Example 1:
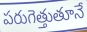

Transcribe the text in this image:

పరుగెత్తుతూనే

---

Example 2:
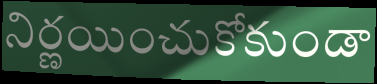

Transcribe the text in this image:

నిర్ణయించుకోకుండా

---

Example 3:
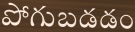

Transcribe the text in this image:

పోగుబడడం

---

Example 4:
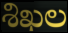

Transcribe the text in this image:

శిఖల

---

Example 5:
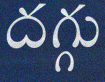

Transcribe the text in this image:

దగ్గు